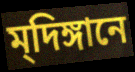
ম্‌দিঙ্গানে